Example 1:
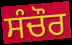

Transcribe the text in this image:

ਸੰਚੌਰ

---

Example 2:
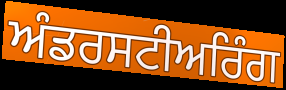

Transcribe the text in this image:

ਅੰਡਰਸਟੀਅਰਿੰਗ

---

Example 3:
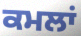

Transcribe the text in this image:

ਕਮਲਾਂ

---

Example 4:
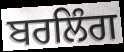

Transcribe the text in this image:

ਬਰਲਿੰਗ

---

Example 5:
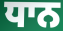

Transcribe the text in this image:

ਧਾਨ